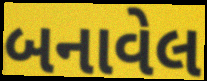
બનાવેલ